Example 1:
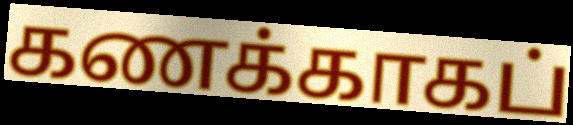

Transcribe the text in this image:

கணக்காகப்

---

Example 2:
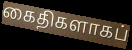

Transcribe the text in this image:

கைதிகளாகப்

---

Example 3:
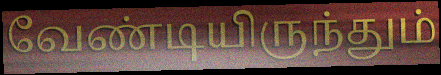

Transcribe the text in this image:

வேண்டியிருந்தும்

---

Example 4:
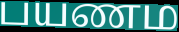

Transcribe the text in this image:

பயணம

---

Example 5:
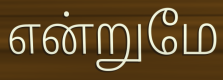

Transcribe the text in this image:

என்றுமே